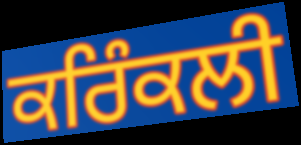
ਕਰਿੰਕਲੀ